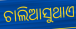
ଚାଲିଆସୁଥାଏ